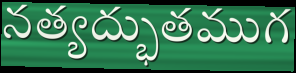
నత్యద్భుతముగ